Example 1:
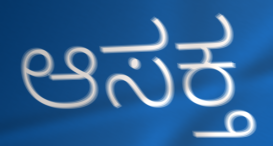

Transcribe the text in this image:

ಆಸಕ್ತ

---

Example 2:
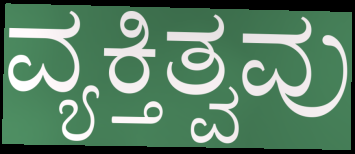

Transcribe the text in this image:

ವ್ಯಕ್ತಿತ್ವವು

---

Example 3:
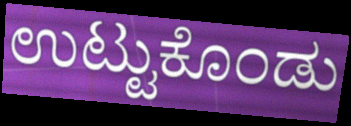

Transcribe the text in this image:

ಉಟ್ಟುಕೊಂಡು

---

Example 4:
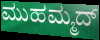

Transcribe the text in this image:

ಮುಹಮ್ಮದ್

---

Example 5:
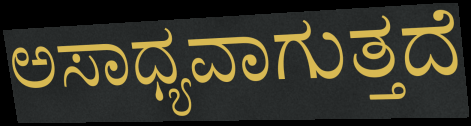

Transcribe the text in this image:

ಅಸಾಧ್ಯವಾಗುತ್ತದೆ